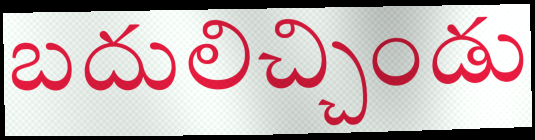
బదులిచ్చిండు